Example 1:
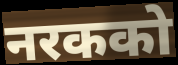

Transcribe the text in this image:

नरकको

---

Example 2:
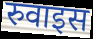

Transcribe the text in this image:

रुवाइस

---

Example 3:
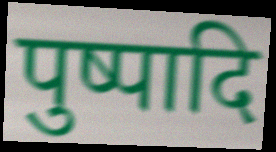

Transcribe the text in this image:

पुष्पादि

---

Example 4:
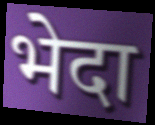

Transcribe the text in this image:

भेदा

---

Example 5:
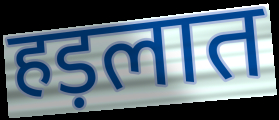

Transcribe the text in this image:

हड़लात